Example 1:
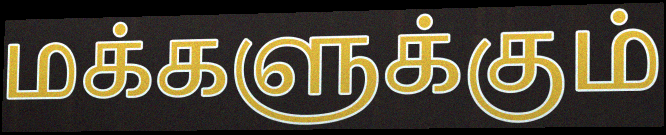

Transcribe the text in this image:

மக்களுக்கும்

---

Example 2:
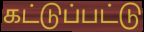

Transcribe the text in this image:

கட்டுப்பட்டு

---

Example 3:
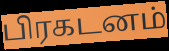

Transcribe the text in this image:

பிரகடனம்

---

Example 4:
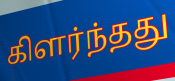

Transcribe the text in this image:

கிளர்ந்தது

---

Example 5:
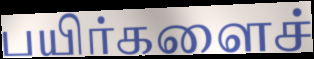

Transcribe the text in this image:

பயிர்களைச்